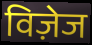
विज़ेज